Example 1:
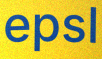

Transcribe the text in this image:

epsl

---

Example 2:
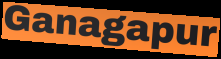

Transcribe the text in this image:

Ganagapur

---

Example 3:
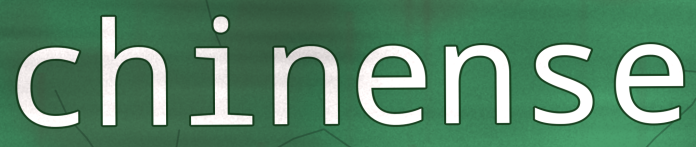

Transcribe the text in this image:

chinense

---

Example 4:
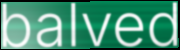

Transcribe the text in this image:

balved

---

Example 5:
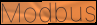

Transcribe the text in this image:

Modbus